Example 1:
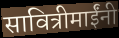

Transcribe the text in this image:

सावित्रीमाईंनी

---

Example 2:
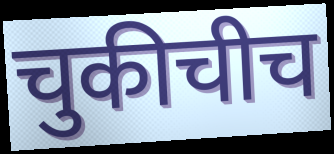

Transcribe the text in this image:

चुकीचीच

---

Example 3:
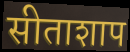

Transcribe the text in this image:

सीताशाप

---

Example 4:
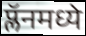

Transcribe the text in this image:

प्लॅनमध्ये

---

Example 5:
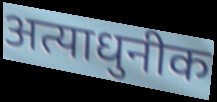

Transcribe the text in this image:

अत्याधुनीक